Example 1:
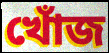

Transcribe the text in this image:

খোঁজ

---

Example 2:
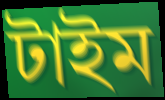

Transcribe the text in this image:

টাইম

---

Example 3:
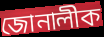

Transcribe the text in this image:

জোনালীক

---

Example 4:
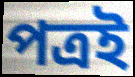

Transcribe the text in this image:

পত্ৰই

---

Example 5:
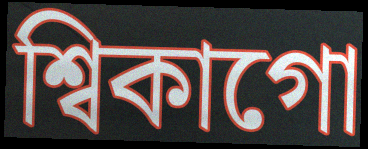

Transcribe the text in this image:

শ্বিকাগো